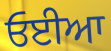
ਓਈਆ